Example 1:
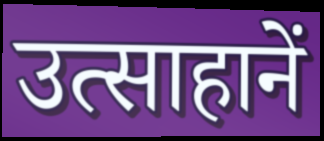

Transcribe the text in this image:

उत्साहानें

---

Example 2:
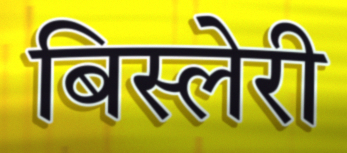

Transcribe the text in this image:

बिस्लेरी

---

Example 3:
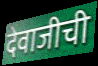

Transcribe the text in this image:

देवाजीची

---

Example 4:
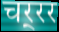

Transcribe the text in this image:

चर्रर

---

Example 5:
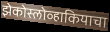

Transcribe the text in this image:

झेकोस्लोव्हाकियाचा